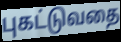
புகட்டுவதை